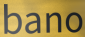
bano